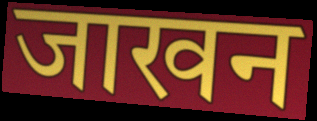
जाखन